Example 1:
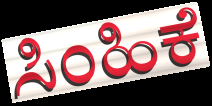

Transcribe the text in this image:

ಸಿಂಹಿಕೆ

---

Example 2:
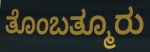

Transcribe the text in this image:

ತೊಂಬತ್ಮೂರು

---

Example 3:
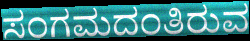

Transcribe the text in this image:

ಸಂಗಮದಂತಿರುವ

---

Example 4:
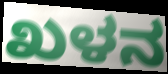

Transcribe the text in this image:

ಖಳನ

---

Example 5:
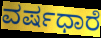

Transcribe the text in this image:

ವರ್ಷಧಾರೆ